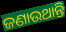
ଜଣାଉଥାନ୍ତି